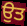
ਉਤ